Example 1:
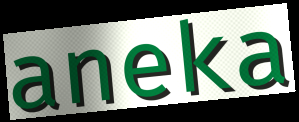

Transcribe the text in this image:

aneka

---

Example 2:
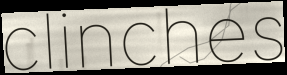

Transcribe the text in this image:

clinches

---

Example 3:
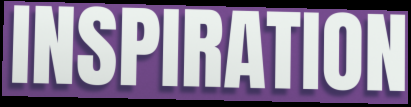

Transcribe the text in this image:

INSPIRATION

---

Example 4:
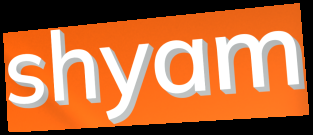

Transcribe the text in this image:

shyam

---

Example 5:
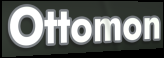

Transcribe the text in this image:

Ottomon